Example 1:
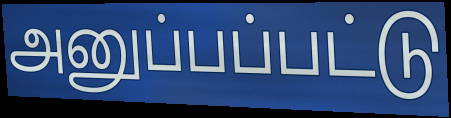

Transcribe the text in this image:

அனுப்பப்பட்டு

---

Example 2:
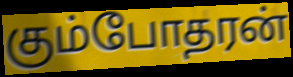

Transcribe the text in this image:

கும்போதரன்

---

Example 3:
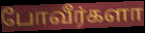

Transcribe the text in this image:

போவீர்களா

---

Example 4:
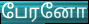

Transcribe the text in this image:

பேரனோ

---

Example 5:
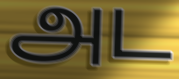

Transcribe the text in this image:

அட